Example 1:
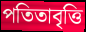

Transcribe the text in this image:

পতিতাবৃত্তি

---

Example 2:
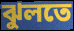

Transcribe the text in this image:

ঝুলতে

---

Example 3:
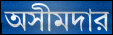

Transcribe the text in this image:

অসীমদার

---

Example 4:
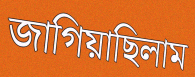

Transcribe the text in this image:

জাগিয়াছিলাম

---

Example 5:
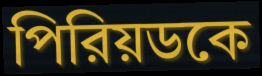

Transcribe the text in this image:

পিরিয়ডকে